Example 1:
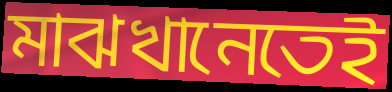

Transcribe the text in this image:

মাঝখানেতেই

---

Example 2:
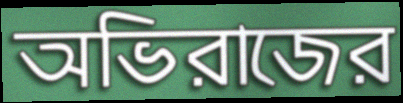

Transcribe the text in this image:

অভিরাজের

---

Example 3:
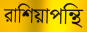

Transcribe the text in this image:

রাশিয়াপন্থি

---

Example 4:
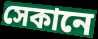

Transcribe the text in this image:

সেকানে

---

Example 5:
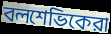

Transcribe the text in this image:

বলশেভিকেরা